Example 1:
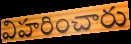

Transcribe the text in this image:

విహరించారు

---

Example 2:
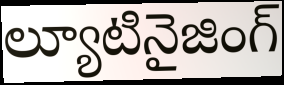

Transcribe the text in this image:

ల్యూటినైజింగ్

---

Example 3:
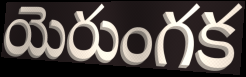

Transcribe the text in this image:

యెరుంగక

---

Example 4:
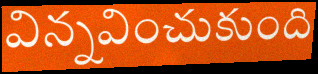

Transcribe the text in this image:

విన్నవించుకుంది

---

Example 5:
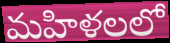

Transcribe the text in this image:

మహిళలలో